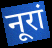
नूरां